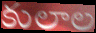
కులాల